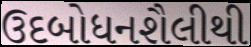
ઉદબોધનશૈલીથી